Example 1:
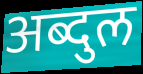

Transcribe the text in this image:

अब्दुल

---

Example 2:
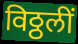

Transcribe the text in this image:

विठ्ठलीं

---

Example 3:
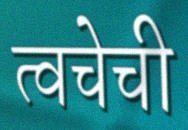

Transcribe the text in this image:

त्वचेची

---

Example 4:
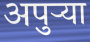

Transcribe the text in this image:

अपुर्‍या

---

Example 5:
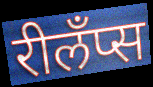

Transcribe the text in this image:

रीलँप्स